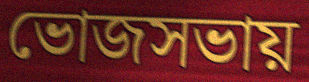
ভোজসভায়